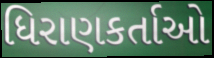
ધિરાણકર્તાઓ